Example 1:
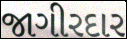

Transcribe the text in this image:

જાગીરદાર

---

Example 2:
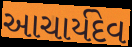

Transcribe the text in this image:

આચાર્યદેવ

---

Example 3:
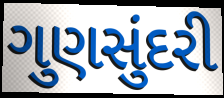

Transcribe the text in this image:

ગુણસુંદરી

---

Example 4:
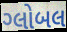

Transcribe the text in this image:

ગ્લોબલ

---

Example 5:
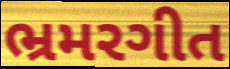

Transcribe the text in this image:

ભ્રમરગીત